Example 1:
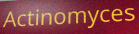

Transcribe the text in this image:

Actinomyces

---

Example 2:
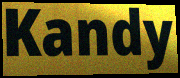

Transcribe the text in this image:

Kandy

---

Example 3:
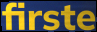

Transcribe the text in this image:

firste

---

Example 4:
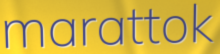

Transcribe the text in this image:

marattok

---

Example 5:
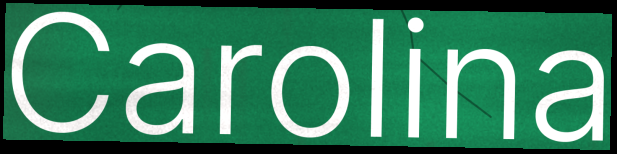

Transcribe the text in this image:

Carolina